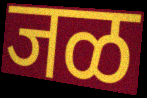
जळ